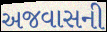
અજવાસની